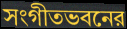
সংগীতভবনের